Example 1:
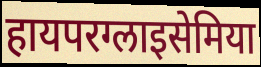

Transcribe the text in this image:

हायपरग्लाइसेमिया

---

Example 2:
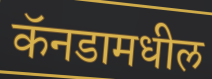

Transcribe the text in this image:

कॅनडामधील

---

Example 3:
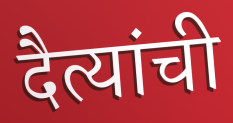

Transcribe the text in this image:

दैत्यांची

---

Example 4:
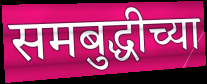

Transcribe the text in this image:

समबुद्धीच्या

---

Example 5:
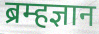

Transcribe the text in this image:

ब्रम्हज्ञान